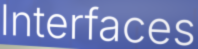
Interfaces